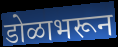
डोळाभरून